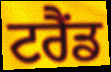
ਟਰੈਂਡ